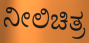
ನೀಲಿಚಿತ್ರ